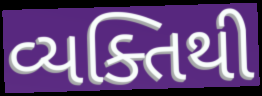
વ્યક્તિથી